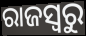
ରାଜସ୍ବରୁ